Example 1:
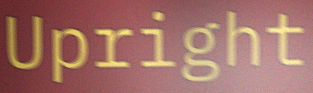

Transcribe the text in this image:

Upright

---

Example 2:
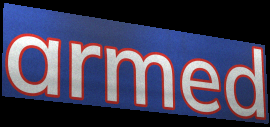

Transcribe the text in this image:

armed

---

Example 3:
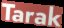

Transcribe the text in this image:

Tarak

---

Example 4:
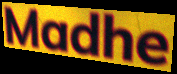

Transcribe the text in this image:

Madhe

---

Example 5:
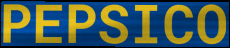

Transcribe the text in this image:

PEPSICO